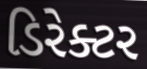
ડિરેક્ટર